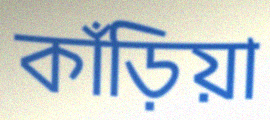
কাঁড়িয়া